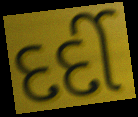
દર્દી